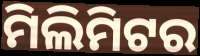
ମିଲିମିଟର